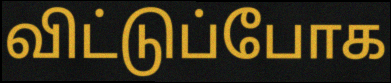
விட்டுப்போக